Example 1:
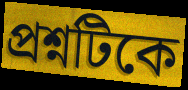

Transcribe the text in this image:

প্রশ্নটিকে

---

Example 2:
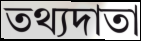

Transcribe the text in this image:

তথ্যদাতা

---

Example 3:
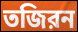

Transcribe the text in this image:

তজিরন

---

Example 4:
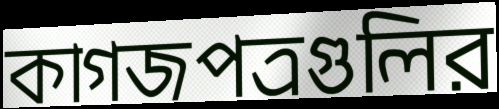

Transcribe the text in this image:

কাগজপত্রগুলির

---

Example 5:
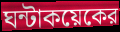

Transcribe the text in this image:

ঘন্টাকয়েকের